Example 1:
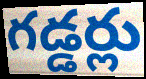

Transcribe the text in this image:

గడ్డర్లు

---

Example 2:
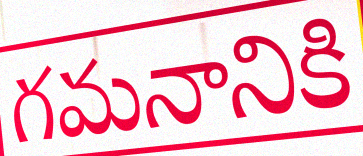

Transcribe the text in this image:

గమనానికి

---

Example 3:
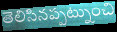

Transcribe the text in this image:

తెలిసినప్పట్నుంచి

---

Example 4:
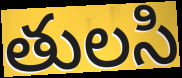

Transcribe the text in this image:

తులసి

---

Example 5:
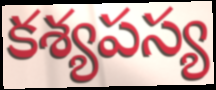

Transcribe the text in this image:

కశ్యపస్య